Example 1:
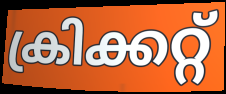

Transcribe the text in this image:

ക്രിക്കറ്റ്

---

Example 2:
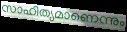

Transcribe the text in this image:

സാഹിത്യമാണെന്നും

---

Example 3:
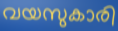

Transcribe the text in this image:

വയസുകാരി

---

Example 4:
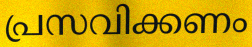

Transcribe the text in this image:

പ്രസവിക്കണം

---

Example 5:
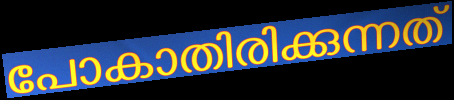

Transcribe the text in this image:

പോകാതിരിക്കുന്നത്